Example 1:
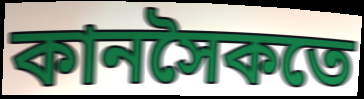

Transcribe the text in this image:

কানসৈকতে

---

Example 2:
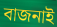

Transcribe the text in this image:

বাজনাই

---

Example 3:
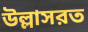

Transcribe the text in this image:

উল্লাসরত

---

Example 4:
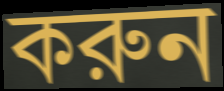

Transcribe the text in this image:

করুন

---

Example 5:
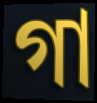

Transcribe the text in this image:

গা